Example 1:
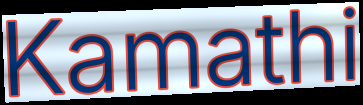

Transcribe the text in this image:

Kamathi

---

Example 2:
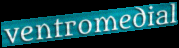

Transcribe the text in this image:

ventromedial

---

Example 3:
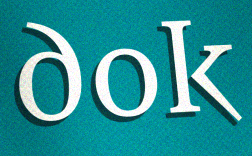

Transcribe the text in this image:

dok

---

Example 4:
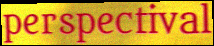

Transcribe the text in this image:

perspectival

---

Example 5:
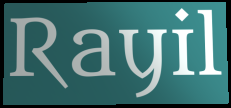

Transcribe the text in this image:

Rayil